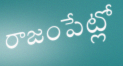
రాజంపేట్లో